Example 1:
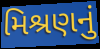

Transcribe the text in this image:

મિશ્રણનું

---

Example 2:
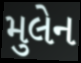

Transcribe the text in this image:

મુલેન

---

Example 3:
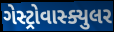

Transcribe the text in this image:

ગેસ્ટ્રોવાસ્ક્યુલર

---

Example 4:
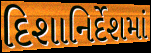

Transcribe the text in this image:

દિશાનિર્દેશમાં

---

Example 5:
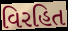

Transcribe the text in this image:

વિરહિત